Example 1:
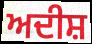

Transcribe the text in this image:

ਅਦੀਸ਼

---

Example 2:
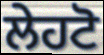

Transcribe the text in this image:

ਲੇਹਟੋ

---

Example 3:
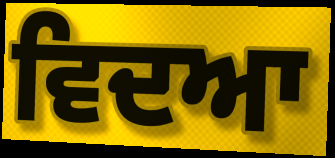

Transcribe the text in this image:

ਵਿਦਆ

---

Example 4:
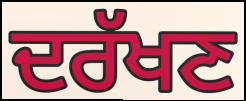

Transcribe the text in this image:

ਦਰੱਖਣ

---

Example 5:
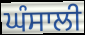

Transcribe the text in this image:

ਘੰਸਾਲੀ